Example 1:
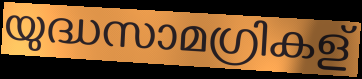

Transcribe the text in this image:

യുദ്ധസാമഗ്രികള്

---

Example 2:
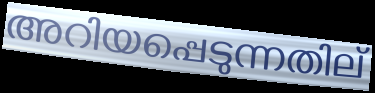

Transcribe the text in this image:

അറിയപ്പെടുന്നതില്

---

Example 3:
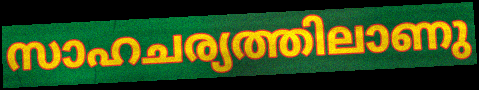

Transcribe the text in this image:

സാഹചര്യത്തിലാണു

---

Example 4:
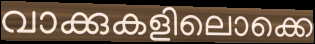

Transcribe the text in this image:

വാക്കുകളിലൊക്കെ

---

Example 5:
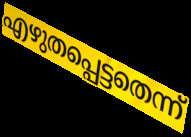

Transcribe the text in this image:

എഴുതപ്പെട്ടതെന്ന്